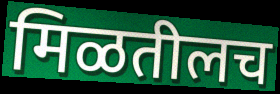
मिळतीलच